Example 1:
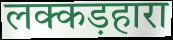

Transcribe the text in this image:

लक्कड़हारा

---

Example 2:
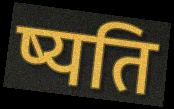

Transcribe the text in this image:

ष्यति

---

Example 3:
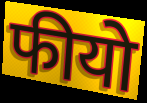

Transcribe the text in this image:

फीयो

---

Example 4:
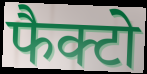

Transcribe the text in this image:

फैक्टो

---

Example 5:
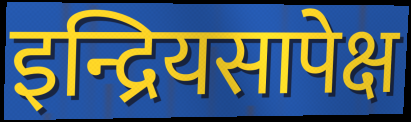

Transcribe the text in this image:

इन्द्रियसापेक्ष